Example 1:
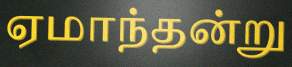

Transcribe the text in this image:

ஏமாந்தன்று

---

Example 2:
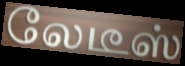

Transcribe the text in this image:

லேடீஸ்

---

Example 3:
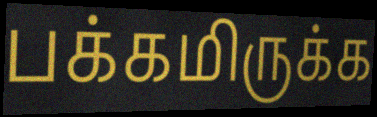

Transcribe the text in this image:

பக்கமிருக்க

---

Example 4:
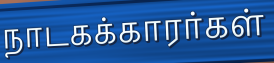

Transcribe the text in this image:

நாடகக்காரர்கள்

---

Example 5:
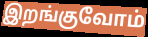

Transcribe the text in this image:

இறங்குவோம்